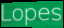
Lopes